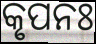
କୃପନଃ